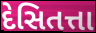
દેસિતત્તા